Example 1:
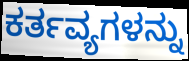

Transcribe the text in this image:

ಕರ್ತವ್ಯಗಳನ್ನು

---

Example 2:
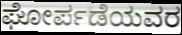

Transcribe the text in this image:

ಘೋರ್ಪಡೆಯವರ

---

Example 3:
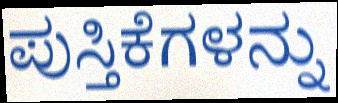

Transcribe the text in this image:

ಪುಸ್ತಿಕೆಗಳನ್ನು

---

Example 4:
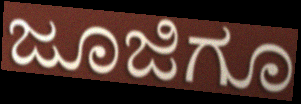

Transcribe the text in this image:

ಜೂಜಿಗೂ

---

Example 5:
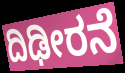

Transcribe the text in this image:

ದಿಢೀರನೆ